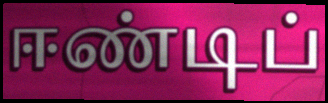
ஈண்டிப்